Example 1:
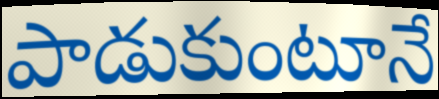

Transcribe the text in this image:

పాడుకుంటూనే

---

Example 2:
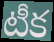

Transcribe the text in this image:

టీక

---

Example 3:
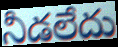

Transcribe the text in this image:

నీడలేదు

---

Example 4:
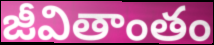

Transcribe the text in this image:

జీవితాంతం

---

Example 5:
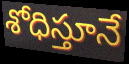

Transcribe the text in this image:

శోధిస్తూనే